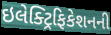
ઇલેક્ટ્રિફિકેશનની